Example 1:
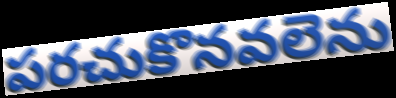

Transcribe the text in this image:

పరచుకొనవలెను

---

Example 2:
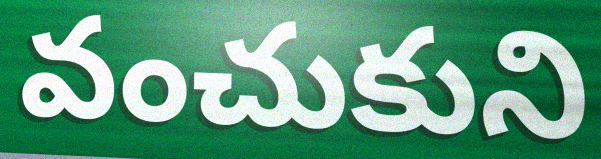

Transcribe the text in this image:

వంచుకుని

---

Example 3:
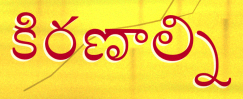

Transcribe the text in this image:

కిరణాల్ని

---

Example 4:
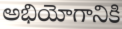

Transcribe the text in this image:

అభియోగానికి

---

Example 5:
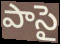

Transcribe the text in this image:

పాసై